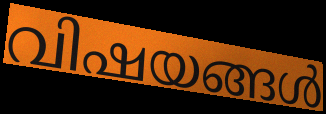
വിഷയങ്ങൾ